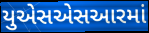
યુએસએસઆરમાં